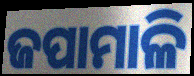
ଜପାମାଳି